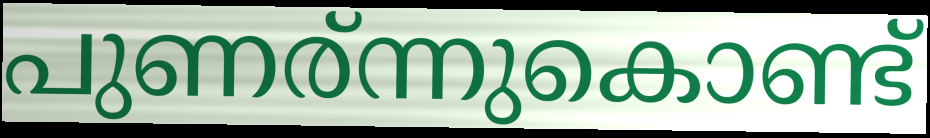
പുണര്ന്നുകൊണ്ട്